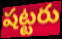
షట్టరు